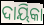
ଦାୟିକା